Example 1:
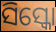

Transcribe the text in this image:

ସିସ୍କୋ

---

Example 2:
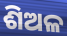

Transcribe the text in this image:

ଶିଅଳ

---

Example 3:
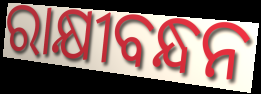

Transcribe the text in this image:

ରାକ୍ଷୀବନ୍ଧନ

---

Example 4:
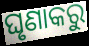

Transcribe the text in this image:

ଘୃଣାକରୁ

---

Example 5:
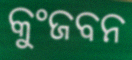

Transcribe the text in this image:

କୁଂଜବନ